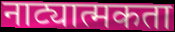
नाट्यात्मकता